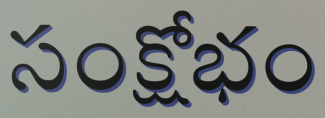
సంక్షోభం